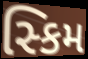
સ્કિમ